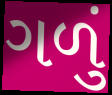
ગળું